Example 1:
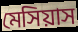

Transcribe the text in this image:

মেসিয়াস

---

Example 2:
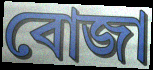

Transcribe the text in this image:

বোজা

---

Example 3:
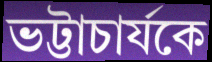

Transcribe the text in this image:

ভট্টাচার্যকে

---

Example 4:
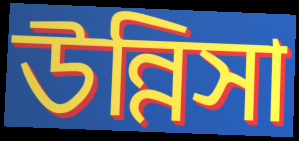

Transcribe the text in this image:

উন্নিসা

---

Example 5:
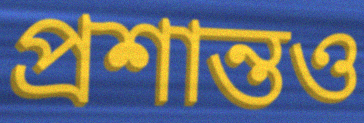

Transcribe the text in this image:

প্রশান্তও